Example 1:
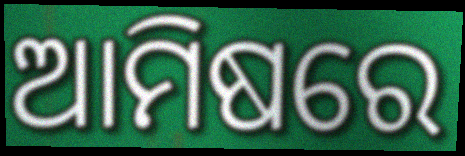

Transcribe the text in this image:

ଆମିଷରେ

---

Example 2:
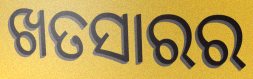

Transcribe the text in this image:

ଖତସାରର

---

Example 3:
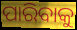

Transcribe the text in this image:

ପାରିବାକୁ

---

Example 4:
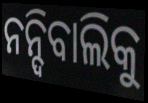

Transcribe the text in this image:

ନନ୍ଦିବାଲିକୁ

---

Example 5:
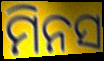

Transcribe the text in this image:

ମିନସ